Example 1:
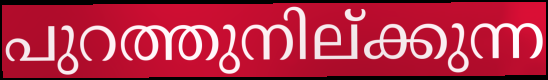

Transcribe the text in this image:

പുറത്തുനില്ക്കുന്ന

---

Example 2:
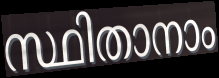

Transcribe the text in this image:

സ്ഥിതാനാം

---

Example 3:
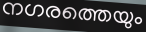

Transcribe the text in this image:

നഗരത്തെയും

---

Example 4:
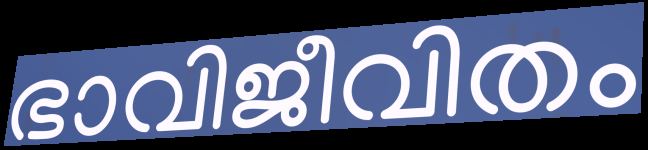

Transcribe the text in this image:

ഭാവിജീവിതം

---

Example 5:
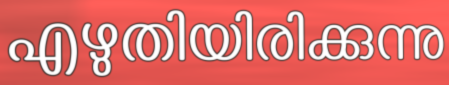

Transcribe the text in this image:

എഴുതിയിരിക്കുന്നു